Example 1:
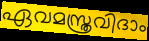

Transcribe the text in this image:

ഏവമസ്ത്രവിദാം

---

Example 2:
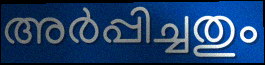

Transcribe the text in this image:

അർപ്പിച്ചതും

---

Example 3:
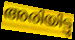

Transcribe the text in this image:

അരിയിട്ടു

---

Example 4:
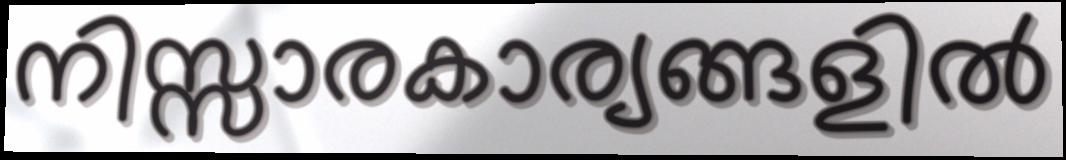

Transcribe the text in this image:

നിസ്സാരകാര്യങ്ങളിൽ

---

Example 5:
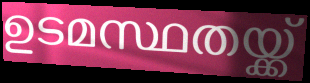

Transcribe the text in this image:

ഉടമസ്ഥതയ്ക്ക്